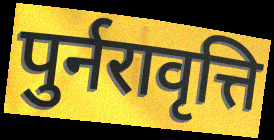
पुर्नरावृत्ति